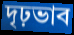
দৃঢ়ভাব